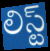
లిస్ట్